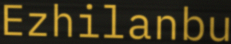
Ezhilanbu